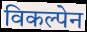
विकल्पेन